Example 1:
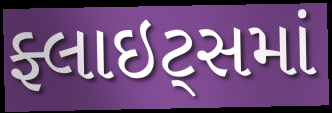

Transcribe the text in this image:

ફ્લાઇટ્સમાં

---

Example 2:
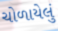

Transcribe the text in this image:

ચોળાયેલું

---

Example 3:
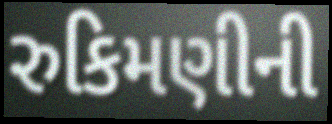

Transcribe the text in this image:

રુકિમણીની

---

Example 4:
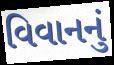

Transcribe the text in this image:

વિવાનનું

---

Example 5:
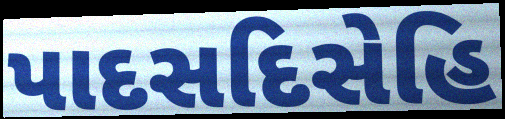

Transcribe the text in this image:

પાદસદિસેહિ